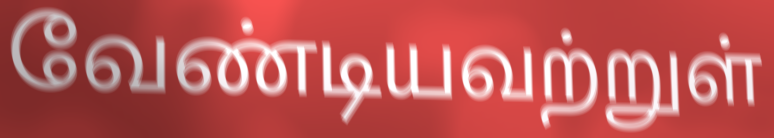
வேண்டியவற்றுள்